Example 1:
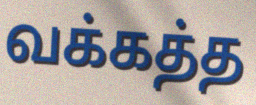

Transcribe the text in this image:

வக்கத்த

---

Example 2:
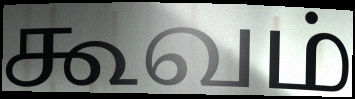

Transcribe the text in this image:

கூவம்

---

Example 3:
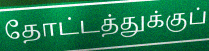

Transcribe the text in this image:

தோட்டத்துக்குப்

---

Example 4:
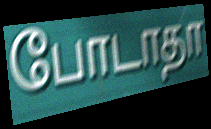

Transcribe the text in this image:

போடாதா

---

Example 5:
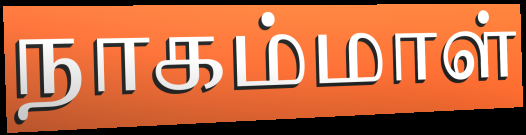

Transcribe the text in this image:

நாகம்மாள்